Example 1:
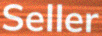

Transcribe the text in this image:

Seller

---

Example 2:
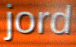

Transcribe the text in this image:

jord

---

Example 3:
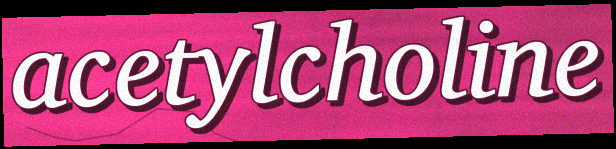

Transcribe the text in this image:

acetylcholine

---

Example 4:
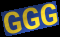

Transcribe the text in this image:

GGG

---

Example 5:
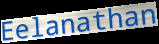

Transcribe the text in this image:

Eelanathan